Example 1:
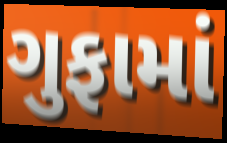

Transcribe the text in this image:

ગુફામાં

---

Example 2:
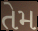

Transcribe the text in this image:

તેમ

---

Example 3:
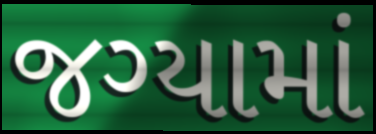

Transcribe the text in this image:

જગ્યામાં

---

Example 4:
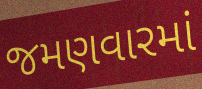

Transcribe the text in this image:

જમણવારમાં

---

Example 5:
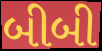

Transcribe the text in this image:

બીબી